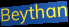
Beythan